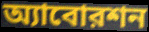
অ্যাবোরশন